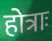
होत्राः